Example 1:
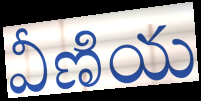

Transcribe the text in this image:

వీణియ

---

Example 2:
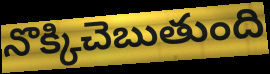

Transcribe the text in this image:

నొక్కిచెబుతుంది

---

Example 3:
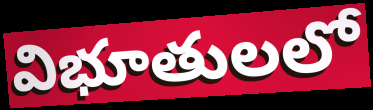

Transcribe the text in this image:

విభూతులలో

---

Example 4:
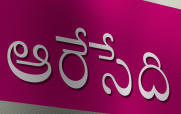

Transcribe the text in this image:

ఆరేసేది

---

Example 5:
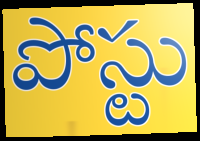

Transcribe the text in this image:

పోస్టు